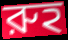
রুহ